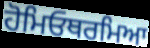
ਹੋਮਿਓਥਰਮਿਆ